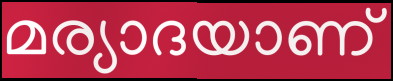
മര്യാദയാണ്